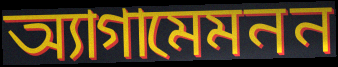
অ্যাগামেমনন